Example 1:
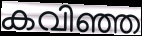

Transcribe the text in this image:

കവിഞ്ഞ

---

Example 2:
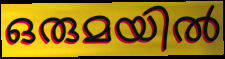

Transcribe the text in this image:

ഒരുമയിൽ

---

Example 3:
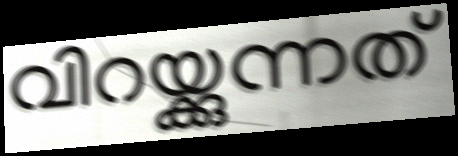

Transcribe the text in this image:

വിറയ്ക്കുന്നത്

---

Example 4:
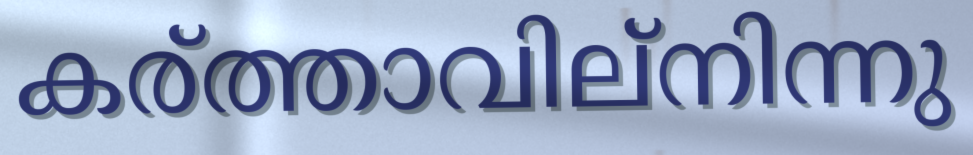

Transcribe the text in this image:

കര്ത്താവില്നിന്നു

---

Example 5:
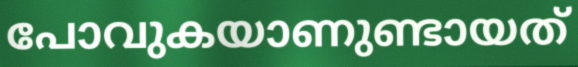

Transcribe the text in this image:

പോവുകയാണുണ്ടായത്